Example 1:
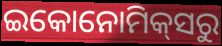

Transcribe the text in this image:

ଇକୋନୋମିକ୍‌ସରୁ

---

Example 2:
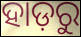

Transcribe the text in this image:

ହାଡ଼ରୁ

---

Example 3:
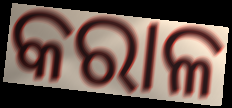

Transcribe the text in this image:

କରାଳ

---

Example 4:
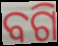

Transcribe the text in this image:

ବଗି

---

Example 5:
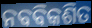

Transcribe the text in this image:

ନବବିକଶିତ